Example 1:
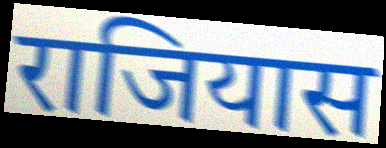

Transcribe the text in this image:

राजियास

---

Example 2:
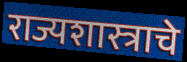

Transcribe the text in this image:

राज्यशास्त्राचे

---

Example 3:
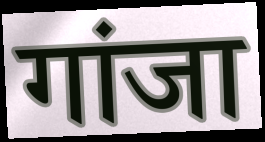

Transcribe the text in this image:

गांजा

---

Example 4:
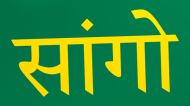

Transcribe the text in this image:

सांगो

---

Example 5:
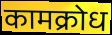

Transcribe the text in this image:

कामक्रोध